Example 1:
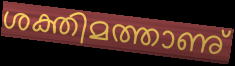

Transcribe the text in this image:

ശക്തിമത്താണു്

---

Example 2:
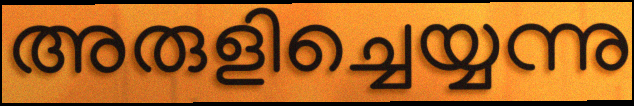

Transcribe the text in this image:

അരുളിച്ചെയ്യന്നു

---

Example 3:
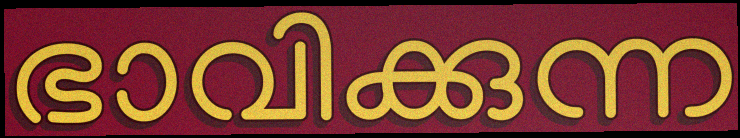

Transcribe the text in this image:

ഭാവിക്കുന്ന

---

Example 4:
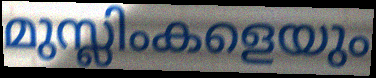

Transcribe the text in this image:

മുസ്ലിംകളെയും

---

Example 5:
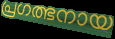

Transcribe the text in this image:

പ്രഗത്ഭനായ